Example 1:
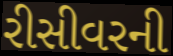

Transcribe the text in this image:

રીસીવરની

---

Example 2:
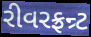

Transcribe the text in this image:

રીવરફ્રન્ર્ટ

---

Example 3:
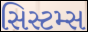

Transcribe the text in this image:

સિસ્ટમ્સ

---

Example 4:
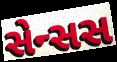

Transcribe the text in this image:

સેન્સસ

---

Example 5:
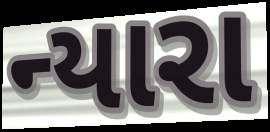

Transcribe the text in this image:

ન્યારા